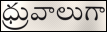
ధ్రువాలుగా